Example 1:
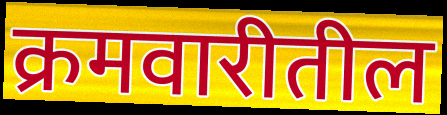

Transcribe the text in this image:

क्रमवारीतील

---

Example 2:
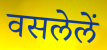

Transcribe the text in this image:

वसलेलें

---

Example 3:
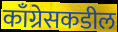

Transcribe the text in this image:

काँग्रेसकडील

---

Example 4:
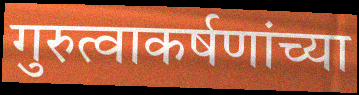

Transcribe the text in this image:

गुरुत्वाकर्षणांच्या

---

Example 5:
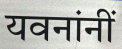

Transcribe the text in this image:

यवनांनीं